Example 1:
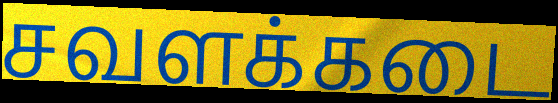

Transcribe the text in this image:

சவளக்கடை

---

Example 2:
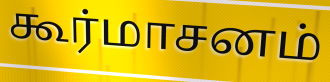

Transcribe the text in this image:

கூர்மாசனம்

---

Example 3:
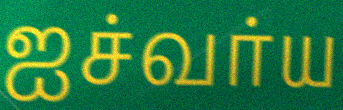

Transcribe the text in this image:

ஐச்வர்ய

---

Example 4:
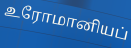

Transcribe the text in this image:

உரோமானியப்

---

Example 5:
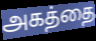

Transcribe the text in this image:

அகத்தை